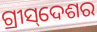
ଗ୍ରୀସ୍‌ଦେଶର